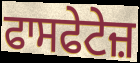
ਫਾਸਫੇਟੇਜ਼